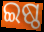
ଇଷ୍ଠ